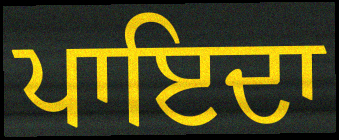
ਪਾਇਦਾ